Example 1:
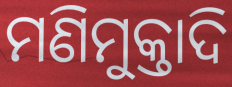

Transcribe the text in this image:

ମଣିମୁକ୍ତାଦି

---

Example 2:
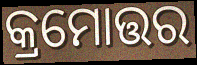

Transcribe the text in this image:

କ୍ରମୋତ୍ତର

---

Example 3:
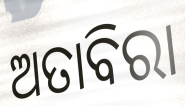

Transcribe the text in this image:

ଅତାବିରା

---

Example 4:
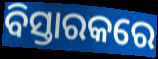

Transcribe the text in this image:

ବିସ୍ତାରକରେ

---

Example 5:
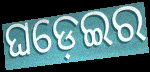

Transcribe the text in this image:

ଘଡ଼େଇର